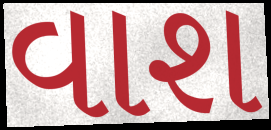
વાશ